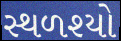
સ્થળશ્યો